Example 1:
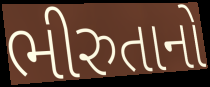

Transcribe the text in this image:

ભીરુતાનો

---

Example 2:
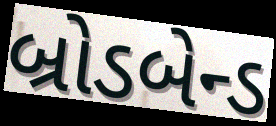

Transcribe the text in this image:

બ્રોડબેન્ડ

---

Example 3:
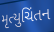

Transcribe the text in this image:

મૃત્યુચિંતન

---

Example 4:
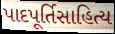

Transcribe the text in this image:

પાદપૂર્તિસાહિત્ય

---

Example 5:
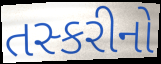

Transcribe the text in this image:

તસ્કરીનો